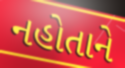
નહોતાને